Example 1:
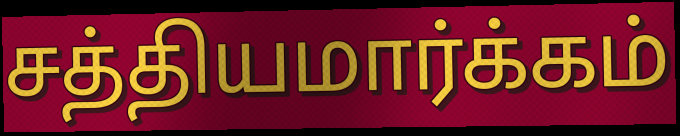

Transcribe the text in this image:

சத்தியமார்க்கம்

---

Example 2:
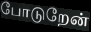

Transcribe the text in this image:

போடுறேன்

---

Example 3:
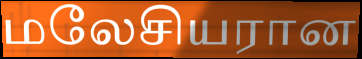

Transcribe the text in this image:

மலேசியரான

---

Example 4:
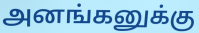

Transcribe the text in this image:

அனங்கனுக்கு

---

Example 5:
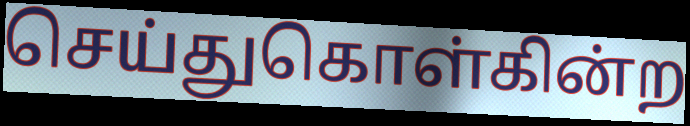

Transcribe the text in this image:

செய்துகொள்கின்ற